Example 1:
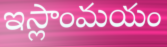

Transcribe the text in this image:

ఇస్లాంమయం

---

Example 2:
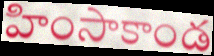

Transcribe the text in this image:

హింసాకాండ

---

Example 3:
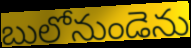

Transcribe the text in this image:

బులోనుండెను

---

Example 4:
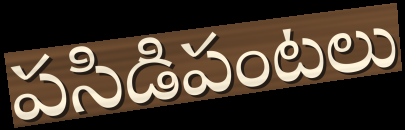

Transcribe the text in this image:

పసిడిపంటలు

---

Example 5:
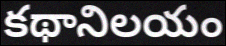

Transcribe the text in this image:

కథానిలయం